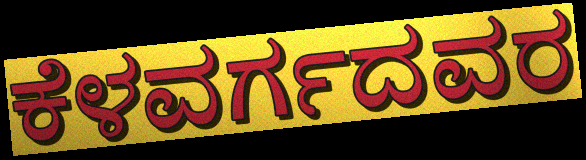
ಕೆಳವರ್ಗದವರ